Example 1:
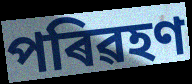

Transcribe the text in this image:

পৰিৱহণ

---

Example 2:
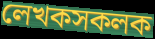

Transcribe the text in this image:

লেখকসকলক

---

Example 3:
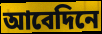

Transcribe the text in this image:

আবেদিনে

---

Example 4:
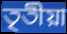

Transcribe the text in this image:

তৃতীয়া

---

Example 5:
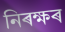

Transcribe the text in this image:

নিৰক্ষৰ